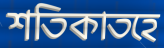
শতিকাতহে